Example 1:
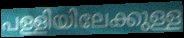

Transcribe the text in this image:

പള്ളിയിലേക്കുള്ള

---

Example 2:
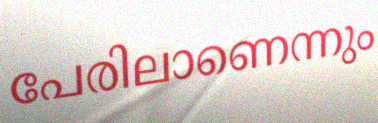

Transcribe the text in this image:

പേരിലാണെന്നും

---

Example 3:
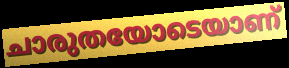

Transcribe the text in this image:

ചാരുതയോടെയാണ്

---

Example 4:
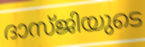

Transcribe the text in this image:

ദാസ്ജിയുടെ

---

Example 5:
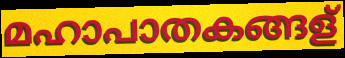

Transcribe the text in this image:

മഹാപാതകങ്ങള്